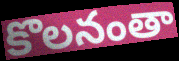
కొలనంతా